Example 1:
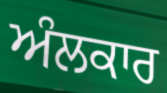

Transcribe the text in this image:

ਅੰਲਕਾਰ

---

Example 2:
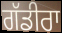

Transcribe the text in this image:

ਗੱਡੀਰਾ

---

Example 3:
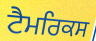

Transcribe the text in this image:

ਟੈਮਰਿਕਸ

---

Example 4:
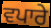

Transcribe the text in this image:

ਵਪਾਰੇ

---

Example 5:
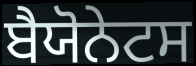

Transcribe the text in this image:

ਬੈਯੋਨੇਟਸ